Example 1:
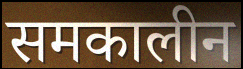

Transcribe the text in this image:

समकालीन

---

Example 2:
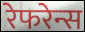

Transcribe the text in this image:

रेफरेन्स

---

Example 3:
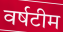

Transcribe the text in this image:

वर्षटीम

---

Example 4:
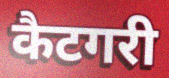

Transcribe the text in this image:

कैटगरी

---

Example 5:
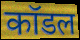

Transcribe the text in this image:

कॉडल